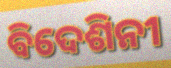
ବିଦେଶିନୀ